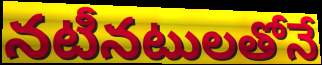
నటీనటులతోనే